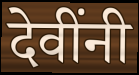
देवींनी